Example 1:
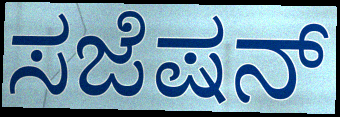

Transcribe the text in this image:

ಸಜೆಷನ್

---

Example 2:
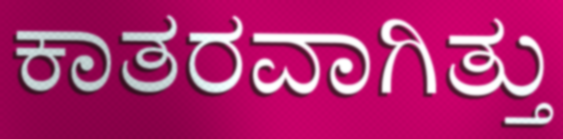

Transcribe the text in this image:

ಕಾತರವಾಗಿತ್ತು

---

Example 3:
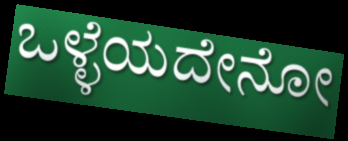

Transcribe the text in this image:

ಒಳ್ಳೆಯದೇನೋ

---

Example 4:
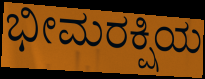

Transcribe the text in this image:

ಭೀಮರಕ್ಷಿಯ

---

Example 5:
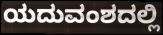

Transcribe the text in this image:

ಯದುವಂಶದಲ್ಲಿ